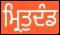
ਮ੍ਰਿਤੁਦੰਡ